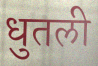
धुतली